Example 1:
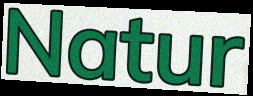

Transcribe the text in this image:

Natur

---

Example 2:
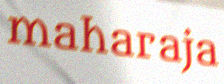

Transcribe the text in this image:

maharaja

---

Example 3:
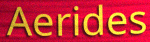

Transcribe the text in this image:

Aerides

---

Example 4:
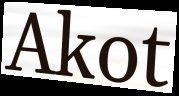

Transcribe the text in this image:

Akot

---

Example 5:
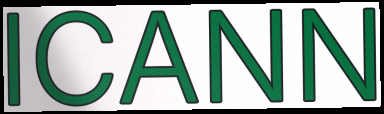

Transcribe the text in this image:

ICANN